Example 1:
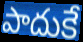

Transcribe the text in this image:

పాదుకే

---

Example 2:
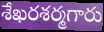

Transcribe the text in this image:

శేఖరశర్మగారు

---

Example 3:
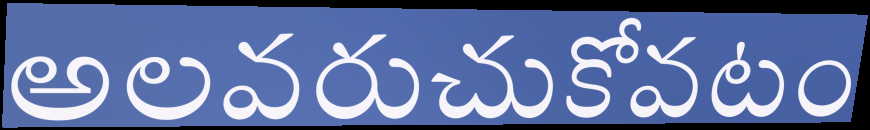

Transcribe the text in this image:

అలవరుచుకోవటం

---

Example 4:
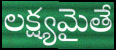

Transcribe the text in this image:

లక్ష్యమైతే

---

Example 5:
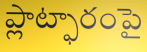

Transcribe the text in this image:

ప్లాట్ఫారంపై